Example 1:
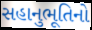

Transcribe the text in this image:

સહાનુભૂતિનો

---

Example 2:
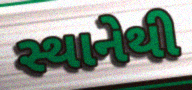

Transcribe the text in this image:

સ્થાનેથી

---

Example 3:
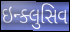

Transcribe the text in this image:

ઇન્ક્લુસિવ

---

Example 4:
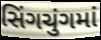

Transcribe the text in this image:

સિંગચુંગમાં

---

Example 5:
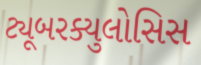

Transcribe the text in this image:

ટ્યૂબરક્યુલોસિસ